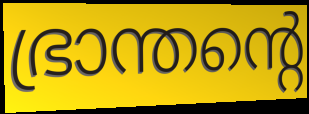
ഭ്രാന്തന്റെ